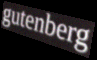
gutenberg